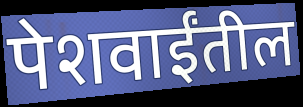
पेशवाईंतील